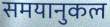
समयानुकल